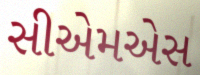
સીએમએસ